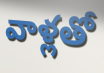
వాళ్లతో